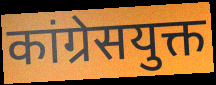
कांग्रेसयुक्त